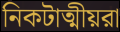
নিকটাত্মীয়রা